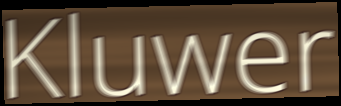
Kluwer